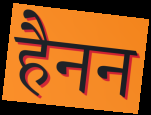
हैनन